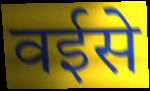
वईसे